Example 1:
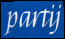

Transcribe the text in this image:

partij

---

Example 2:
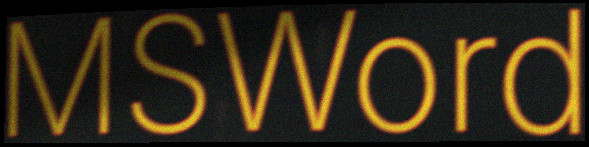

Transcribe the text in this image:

MSWord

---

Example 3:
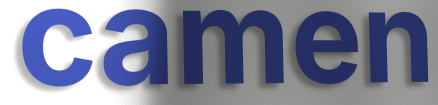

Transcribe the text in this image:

camen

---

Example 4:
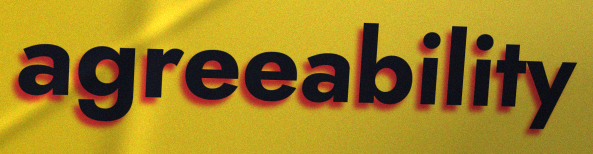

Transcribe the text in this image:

agreeability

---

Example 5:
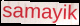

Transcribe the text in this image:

samayik